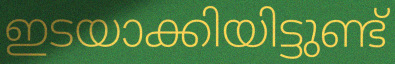
ഇടയാക്കിയിട്ടുണ്ട്